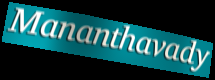
Mananthavady